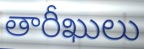
తారీఖులు